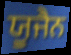
ਯੂਜੈਨ